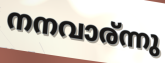
നനവാര്ന്നു